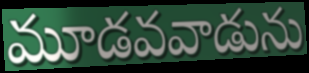
మూడవవాడును